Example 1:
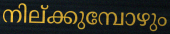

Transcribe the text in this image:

നില്ക്കുമ്പോഴും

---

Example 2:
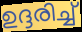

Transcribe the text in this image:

ഉദ്ദരിച്ച്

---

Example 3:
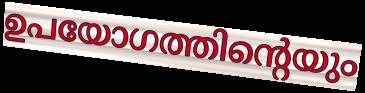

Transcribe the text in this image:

ഉപയോഗത്തിന്റെയും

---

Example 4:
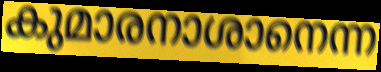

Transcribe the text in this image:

കുമാരനാശാനെന്ന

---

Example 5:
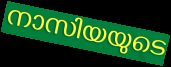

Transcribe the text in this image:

നാസിയയുടെ